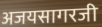
अजयसागरजी